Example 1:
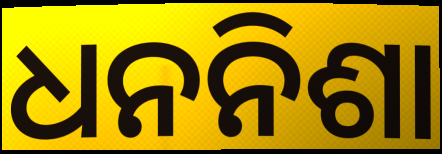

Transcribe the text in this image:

ଧନନିଶା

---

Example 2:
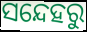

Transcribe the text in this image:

ସନ୍ଦେହରୁ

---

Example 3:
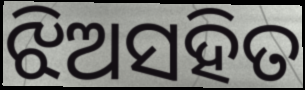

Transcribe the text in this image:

ଝିଅସହିତ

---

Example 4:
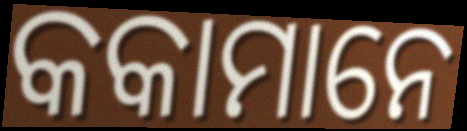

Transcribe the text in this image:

କକାମାନେ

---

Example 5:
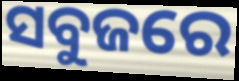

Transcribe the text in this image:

ସବୁଜରେ